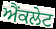
ਐਂਕਲੇਟ